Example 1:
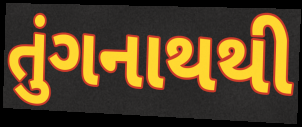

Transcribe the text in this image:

તુંગનાથથી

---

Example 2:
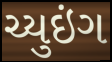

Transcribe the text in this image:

ચ્યુઇંગ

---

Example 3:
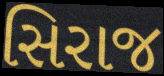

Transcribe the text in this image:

સિરાજ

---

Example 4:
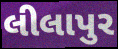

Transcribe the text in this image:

લીલાપુર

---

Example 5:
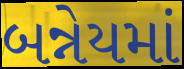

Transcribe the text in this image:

બન્નેયમાં